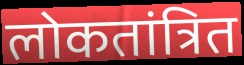
लोकतांत्रित